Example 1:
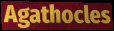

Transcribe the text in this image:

Agathocles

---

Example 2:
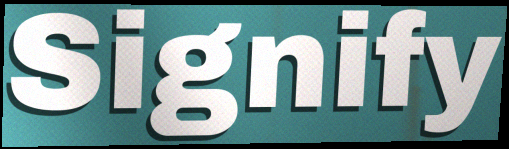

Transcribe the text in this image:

Signify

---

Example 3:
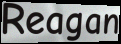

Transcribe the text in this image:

Reagan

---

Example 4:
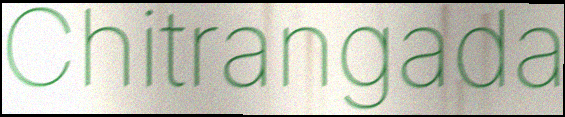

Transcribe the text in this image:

Chitrangada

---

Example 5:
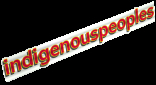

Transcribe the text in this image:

indigenouspeoples